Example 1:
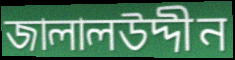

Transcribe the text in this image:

জালালউদ্দীন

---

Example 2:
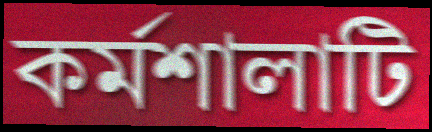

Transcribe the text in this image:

কর্মশালাটি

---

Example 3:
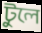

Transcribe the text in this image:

টুলে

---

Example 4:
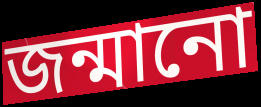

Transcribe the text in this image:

জন্মানো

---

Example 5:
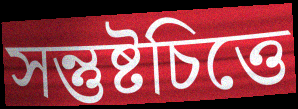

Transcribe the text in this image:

সন্তুষ্টচিত্তে